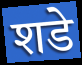
शडे